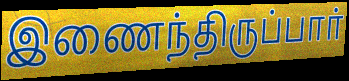
இணைந்திருப்பார்